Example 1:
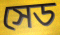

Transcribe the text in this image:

সেড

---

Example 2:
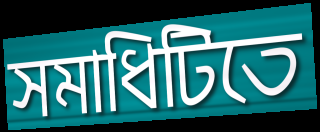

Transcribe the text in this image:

সমাধিটিতে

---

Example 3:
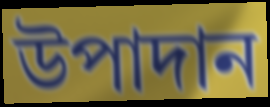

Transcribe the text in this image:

উপাদান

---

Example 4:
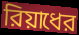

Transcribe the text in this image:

রিয়াধের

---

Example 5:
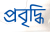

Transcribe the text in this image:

প্রবৃদ্ধি